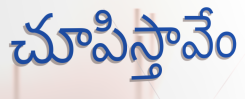
చూపిస్తావేం